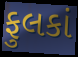
ફુલકાં